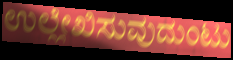
ಉಲ್ಲೇಖಿಸುವುದುಂಟು